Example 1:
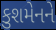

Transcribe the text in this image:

કુશમેનને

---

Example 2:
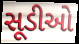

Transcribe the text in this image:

સૂડીઓ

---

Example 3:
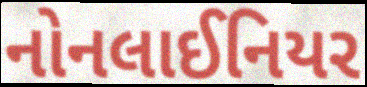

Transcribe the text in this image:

નોનલાઈનિયર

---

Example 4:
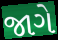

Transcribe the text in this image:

જાગે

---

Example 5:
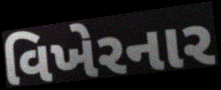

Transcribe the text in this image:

વિખેરનાર